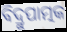
ବିଦ୍ରୁପାତ୍ମକ